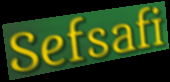
Sefsafi